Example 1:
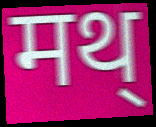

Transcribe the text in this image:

मथ्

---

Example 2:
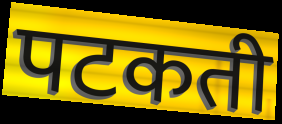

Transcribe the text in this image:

पटकती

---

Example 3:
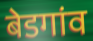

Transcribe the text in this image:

बेडगांव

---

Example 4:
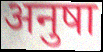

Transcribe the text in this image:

अनुषा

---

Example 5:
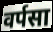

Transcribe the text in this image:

वर्पसा